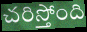
చరిస్తోంది